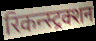
रिकन्स्ट्रक्शन